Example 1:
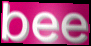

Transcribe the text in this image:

bee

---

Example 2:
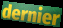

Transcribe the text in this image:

dernier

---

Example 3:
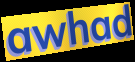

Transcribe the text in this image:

awhad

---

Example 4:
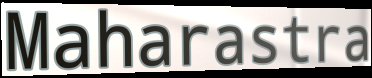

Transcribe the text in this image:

Maharastra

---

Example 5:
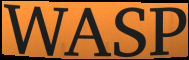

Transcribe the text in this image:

WASP